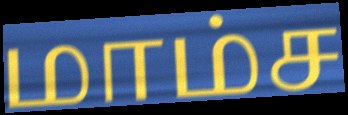
மாம்ச